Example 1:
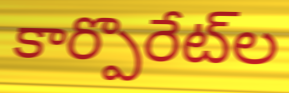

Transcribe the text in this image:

కార్పొరేట్‌ల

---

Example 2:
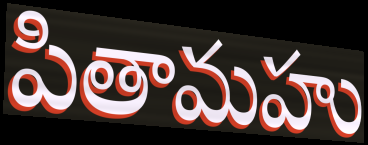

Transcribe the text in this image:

పితామహు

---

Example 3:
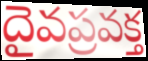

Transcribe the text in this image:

దైవప్రవక్త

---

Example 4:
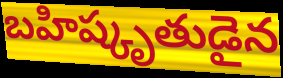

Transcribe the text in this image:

బహిష్కృతుడైన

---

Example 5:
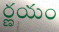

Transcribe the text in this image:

ర్ణయం